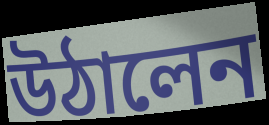
উঠালেন